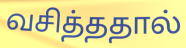
வசித்ததால்